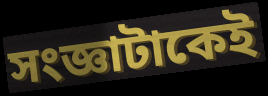
সংজ্ঞাটাকেই